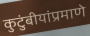
कुटुंबीयांप्रमाणे